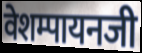
वेशम्पायनजी